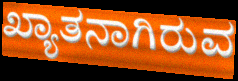
ಖ್ಯಾತನಾಗಿರುವ